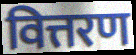
वित्तरण